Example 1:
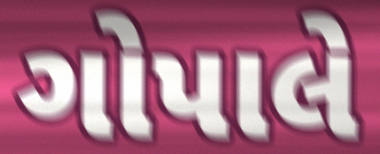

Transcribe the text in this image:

ગોપાલે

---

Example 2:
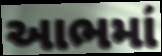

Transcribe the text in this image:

આભમાં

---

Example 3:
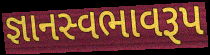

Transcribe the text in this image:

જ્ઞાનસ્વભાવરૂપ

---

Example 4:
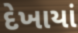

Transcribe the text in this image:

દેખાયાં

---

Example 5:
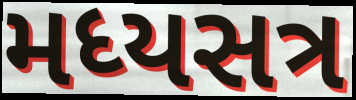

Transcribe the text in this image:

મધ્યસત્ર